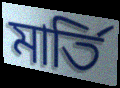
মার্তি